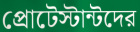
প্রোটেস্টান্টদের